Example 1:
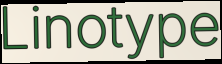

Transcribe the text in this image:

Linotype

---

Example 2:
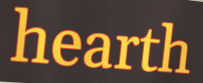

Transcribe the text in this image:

hearth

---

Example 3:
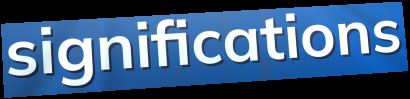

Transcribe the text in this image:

significations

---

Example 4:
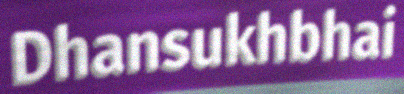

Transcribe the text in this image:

Dhansukhbhai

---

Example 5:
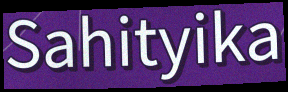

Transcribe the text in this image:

Sahityika